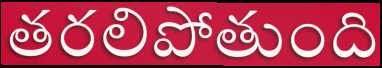
తరలిపోతుంది